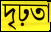
দৃঢ়তা